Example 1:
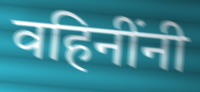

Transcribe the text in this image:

वहिनींनी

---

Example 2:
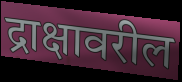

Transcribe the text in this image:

द्राक्षावरील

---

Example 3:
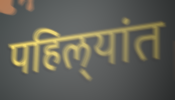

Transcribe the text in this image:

पहिल्यांत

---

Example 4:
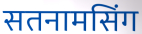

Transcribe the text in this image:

सतनामसिंग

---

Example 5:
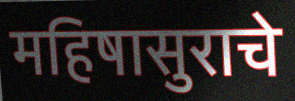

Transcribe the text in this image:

महिषासुराचे